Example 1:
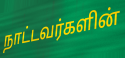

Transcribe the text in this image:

நாட்டவர்களின்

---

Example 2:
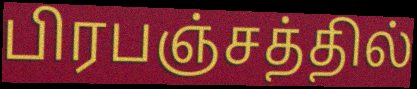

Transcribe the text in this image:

பிரபஞ்சத்தில்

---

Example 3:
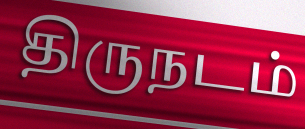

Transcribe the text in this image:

திருநடம்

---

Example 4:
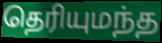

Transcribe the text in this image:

தெரியுமந்த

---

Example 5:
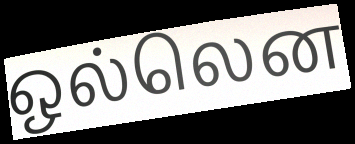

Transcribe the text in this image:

ஒல்லென